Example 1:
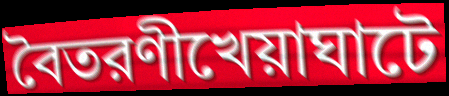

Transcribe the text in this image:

বৈতরণীখেয়াঘাটে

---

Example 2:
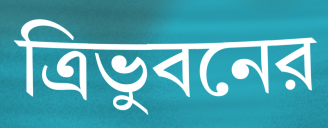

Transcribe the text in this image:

ত্রিভুবনের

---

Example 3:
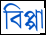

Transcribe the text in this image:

বিপ্পা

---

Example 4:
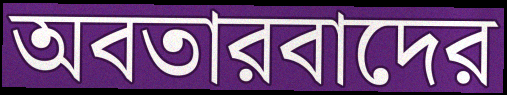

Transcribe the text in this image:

অবতারবাদের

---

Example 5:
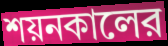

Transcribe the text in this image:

শয়নকালের